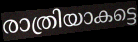
രാത്രിയാകട്ടെ